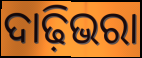
ଦାଢ଼ିଭରା